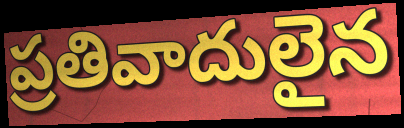
ప్రతివాదులైన